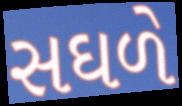
સઘળે